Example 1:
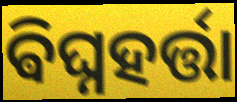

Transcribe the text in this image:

ଵିଘ୍ନହର୍ତ୍ତା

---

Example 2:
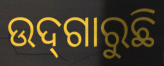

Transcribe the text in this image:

ଉଦ୍‌ଗାରୁଛି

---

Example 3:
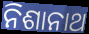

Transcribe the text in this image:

ନିଶାନାଥ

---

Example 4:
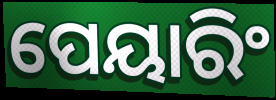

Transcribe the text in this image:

ପେୟାରିଂ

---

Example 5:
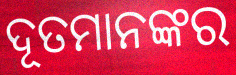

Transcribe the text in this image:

ଦୂତମାନଙ୍କର